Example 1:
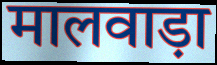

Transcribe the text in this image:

मालवाड़ा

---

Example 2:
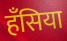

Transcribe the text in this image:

हँसिया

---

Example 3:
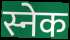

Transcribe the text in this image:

स्नेक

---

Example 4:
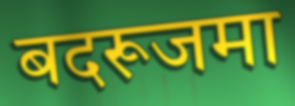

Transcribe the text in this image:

बदरूजमा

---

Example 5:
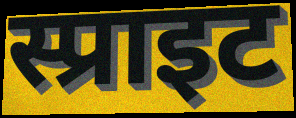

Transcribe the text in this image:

स्प्राइट